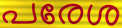
പരേശ